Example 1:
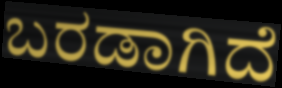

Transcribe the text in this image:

ಬರಡಾಗಿದೆ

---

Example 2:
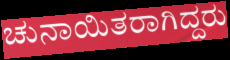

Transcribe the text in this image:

ಚುನಾಯಿತರಾಗಿದ್ದರು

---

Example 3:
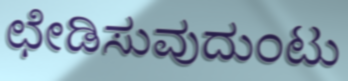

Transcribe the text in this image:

ಛೇಡಿಸುವುದುಂಟು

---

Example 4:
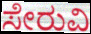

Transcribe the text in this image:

ಸೇರುವಿ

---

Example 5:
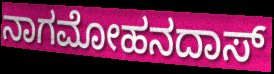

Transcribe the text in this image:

ನಾಗಮೋಹನದಾಸ್